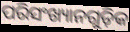
ପରିସଂଖ୍ୟାନଗୁଡ଼ିକ